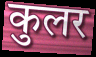
कुलर